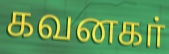
கவனகர்